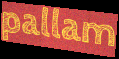
pallam